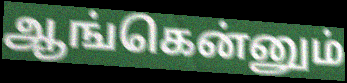
ஆங்கென்னும்